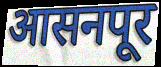
आसनपूर